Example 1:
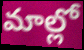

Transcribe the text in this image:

మాల్లో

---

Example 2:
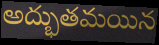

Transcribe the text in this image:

అద్భుతమయిన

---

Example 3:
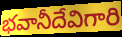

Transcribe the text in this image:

భవానీదేవిగారి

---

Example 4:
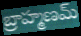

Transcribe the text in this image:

బ్రాహ్మణమ్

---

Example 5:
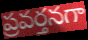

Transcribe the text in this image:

ప్రవర్తనగా